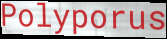
Polyporus